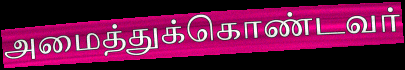
அமைத்துக்கொண்டவர்